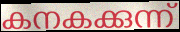
കനകക്കുന്ന്